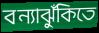
বন্যাঝুঁকিতে